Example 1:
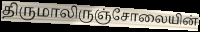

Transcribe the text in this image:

திருமாலிருஞ்சோலையின்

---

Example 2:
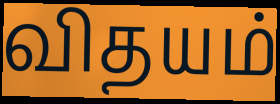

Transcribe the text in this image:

விதயம்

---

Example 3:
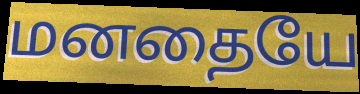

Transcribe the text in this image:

மனதையே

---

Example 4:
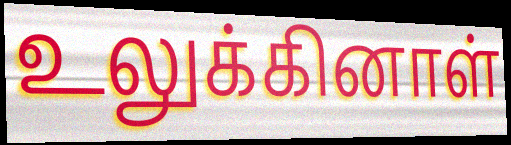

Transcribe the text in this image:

உலுக்கினாள்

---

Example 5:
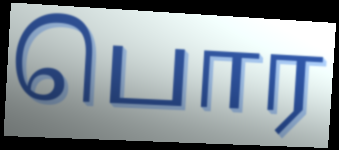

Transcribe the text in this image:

பொர